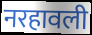
नरहावली